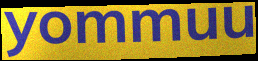
yommuu